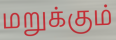
மறுக்கும்